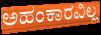
ಅಹಂಕಾರವಿಲ್ಲ